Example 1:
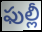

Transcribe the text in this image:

ఫుల్లీ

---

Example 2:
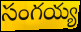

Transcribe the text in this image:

సంగయ్య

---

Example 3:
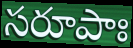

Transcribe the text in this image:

సరూపాః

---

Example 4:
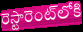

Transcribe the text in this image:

రెస్టారెంట్‌లోకి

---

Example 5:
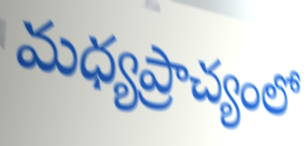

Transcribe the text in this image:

మధ్యప్రాచ్యంలో